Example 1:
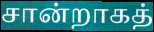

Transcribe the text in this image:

சான்றாகத்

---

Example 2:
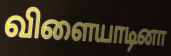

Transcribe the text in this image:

விளையாடினா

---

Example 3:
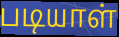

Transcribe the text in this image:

படியாள்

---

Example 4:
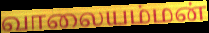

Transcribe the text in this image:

வாலையம்மன்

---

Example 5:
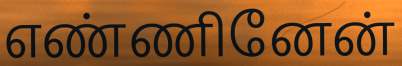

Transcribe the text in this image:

எண்ணினேன்